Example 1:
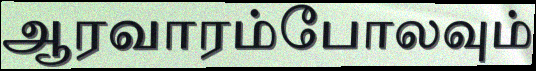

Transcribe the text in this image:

ஆரவாரம்போலவும்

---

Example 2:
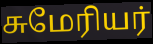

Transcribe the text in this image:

சுமேரியர்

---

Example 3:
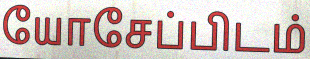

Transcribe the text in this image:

யோசேப்பிடம்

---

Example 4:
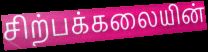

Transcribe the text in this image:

சிற்பக்கலையின்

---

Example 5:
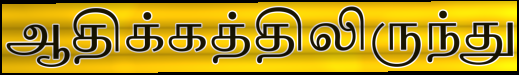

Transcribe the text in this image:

ஆதிக்கத்திலிருந்து